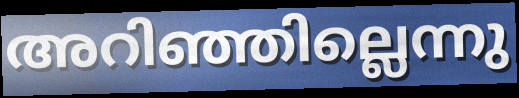
അറിഞ്ഞില്ലെന്നു